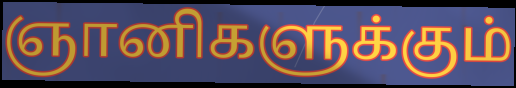
ஞானிகளுக்கும்